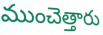
ముంచెత్తారు